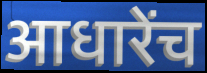
आधारेंच